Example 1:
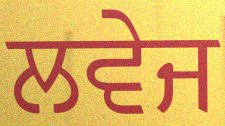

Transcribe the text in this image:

ਲਵੇਜ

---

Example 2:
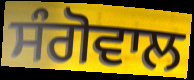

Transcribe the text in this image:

ਸੰਗੋਵਾਲ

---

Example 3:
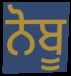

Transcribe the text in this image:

ਨੋਬੂ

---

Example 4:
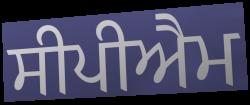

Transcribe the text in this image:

ਸੀਪੀਐਮ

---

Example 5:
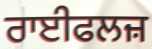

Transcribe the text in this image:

ਰਾਈਫਲਜ਼